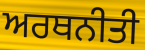
ਅਰਥਨੀਤੀ